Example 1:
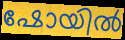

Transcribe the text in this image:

ഷോയിൽ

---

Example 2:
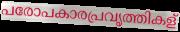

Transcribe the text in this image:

പരോപകാരപ്രവൃത്തികള്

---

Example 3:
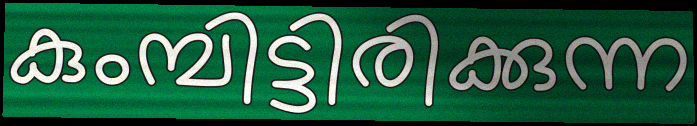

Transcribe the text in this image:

കുംമ്പിട്ടിരിക്കുന്ന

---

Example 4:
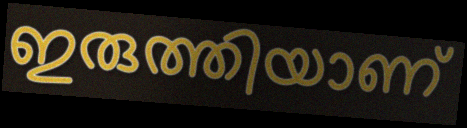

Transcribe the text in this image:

ഇരുത്തിയാണ്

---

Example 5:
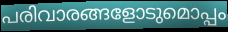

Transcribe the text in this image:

പരിവാരങ്ങളോടുമൊപ്പം